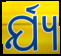
ର୍ଯ୍ୟ